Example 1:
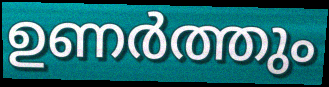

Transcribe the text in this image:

ഉണർത്തും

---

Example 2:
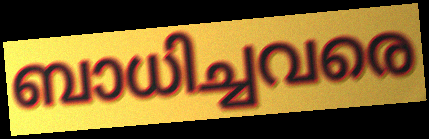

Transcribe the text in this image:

ബാധിച്ചവരെ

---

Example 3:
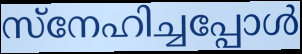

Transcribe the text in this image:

സ്നേഹിച്ചപ്പോൾ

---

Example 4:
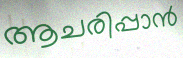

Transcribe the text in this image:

ആചരിപ്പാൻ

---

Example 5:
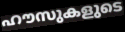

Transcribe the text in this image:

ഹൗസുകളുടെ